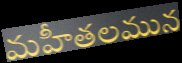
మహీతలమున